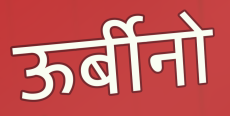
ऊर्बीनो